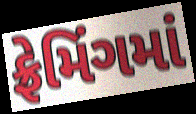
ફ્રેમિંગમાં